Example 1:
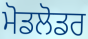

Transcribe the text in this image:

ਮੋਡਲੋਡਰ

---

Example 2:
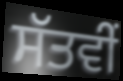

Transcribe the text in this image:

ਸੱਤਵੀਂ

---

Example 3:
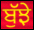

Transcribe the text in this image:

ਬੁੱਝੇ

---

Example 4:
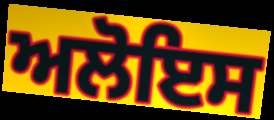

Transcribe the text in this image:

ਅਲੋਇਸ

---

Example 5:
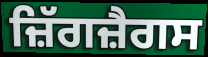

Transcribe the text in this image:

ਜ਼ਿੱਗਜ਼ੈਗਸ